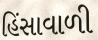
હિંસાવાળી